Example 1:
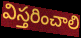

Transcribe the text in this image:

విస్తరించాలి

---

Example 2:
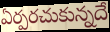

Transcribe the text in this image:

ఏర్పరచుకున్నదే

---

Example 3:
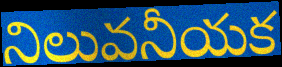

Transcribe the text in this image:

నిలువనీయక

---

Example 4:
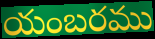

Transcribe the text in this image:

యంబరము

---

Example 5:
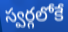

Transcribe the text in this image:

స్వర్గలోకే